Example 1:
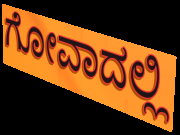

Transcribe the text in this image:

ಗೋವಾದಲ್ಲಿ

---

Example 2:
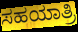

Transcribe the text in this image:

ಸಹಯಾತ್ರಿ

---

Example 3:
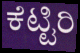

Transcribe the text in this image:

ಕೆಟ್ಟಿರಿ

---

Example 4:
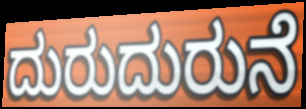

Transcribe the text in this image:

ದುರುದುರುನೆ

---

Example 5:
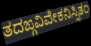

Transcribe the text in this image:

ತದಙ್ಗವಿವೇಕನಿಸ್ಸಿತಂ